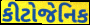
કીટોજેનિક